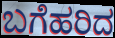
ಬಗೆಹರಿದ